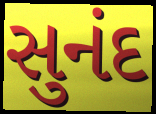
સુનંદ